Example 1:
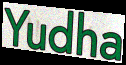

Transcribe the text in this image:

Yudha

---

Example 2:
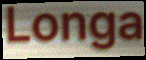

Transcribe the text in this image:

Longa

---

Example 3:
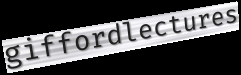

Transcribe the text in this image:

giffordlectures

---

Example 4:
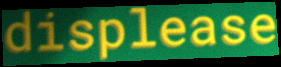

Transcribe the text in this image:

displease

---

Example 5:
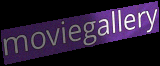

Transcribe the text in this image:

moviegallery